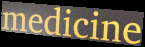
medicine